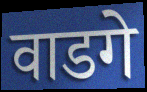
वाडगे